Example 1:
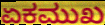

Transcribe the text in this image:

ಏಕಮುಖ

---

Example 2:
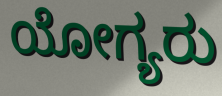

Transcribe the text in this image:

ಯೋಗ್ಯರು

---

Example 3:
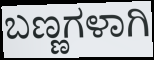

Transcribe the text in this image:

ಬಣ್ಣಗಳಾಗಿ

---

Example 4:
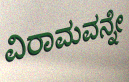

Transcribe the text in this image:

ವಿರಾಮವನ್ನೇ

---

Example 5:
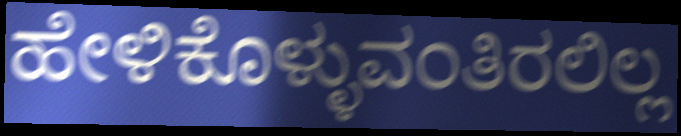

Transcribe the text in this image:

ಹೇಳಿಕೊಳ್ಳುವಂತಿರಲಿಲ್ಲ